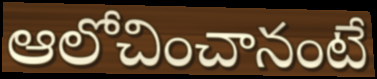
ఆలోచించానంటే